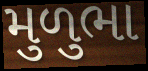
મુળુભા